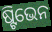
ଷ୍ଟିଭେନ